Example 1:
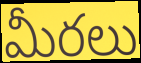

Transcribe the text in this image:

మీరలు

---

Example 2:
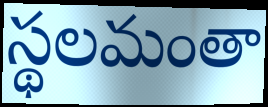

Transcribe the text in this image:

స్థలమంతా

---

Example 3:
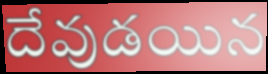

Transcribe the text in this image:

దేవుడయిన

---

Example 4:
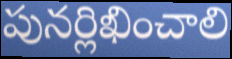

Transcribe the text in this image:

పునర్లిఖించాలి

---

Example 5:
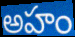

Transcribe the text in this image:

అహం